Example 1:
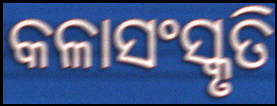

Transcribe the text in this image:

କଳାସଂସ୍କୃତି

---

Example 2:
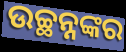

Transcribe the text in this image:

ଉଚ୍ଛନ୍ନଙ୍କର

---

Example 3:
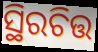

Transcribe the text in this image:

ସ୍ଥିରଚିତ୍ତ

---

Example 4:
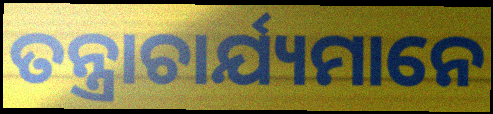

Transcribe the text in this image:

ତନ୍ତ୍ରାଚାର୍ଯ୍ୟମାନେ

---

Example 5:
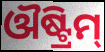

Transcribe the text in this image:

ଔଷ୍ଟ୍ରିମ୍